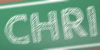
CHRI